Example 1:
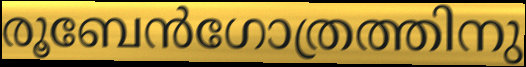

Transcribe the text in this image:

രൂബേൻഗോത്രത്തിനു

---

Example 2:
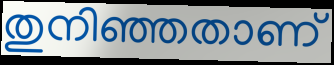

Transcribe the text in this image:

തുനിഞ്ഞതാണ്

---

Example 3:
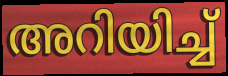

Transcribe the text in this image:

അറിയിച്ച്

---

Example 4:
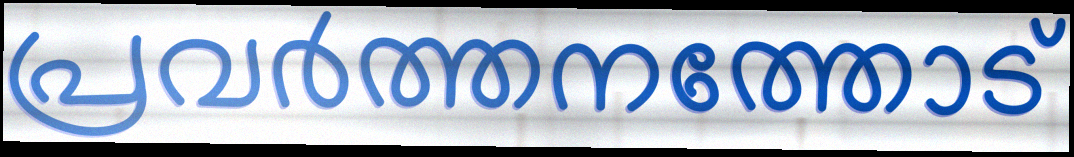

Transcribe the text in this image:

പ്രവർത്തനത്തോട്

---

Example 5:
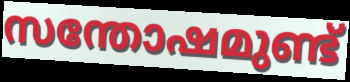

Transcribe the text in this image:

സന്തോഷമുണ്ട്